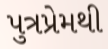
પુત્રપ્રેમથી